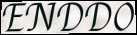
ENDDO